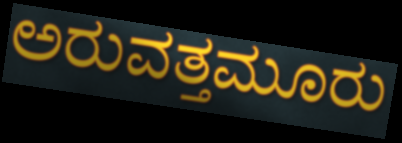
ಅರುವತ್ತಮೂರು